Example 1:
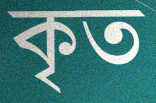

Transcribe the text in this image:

কৃত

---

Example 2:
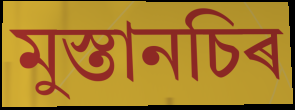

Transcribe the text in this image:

মুস্তানচিৰ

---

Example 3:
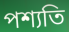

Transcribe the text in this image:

পশ্যতি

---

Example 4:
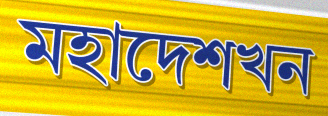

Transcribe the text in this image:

মহাদেশখন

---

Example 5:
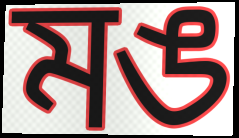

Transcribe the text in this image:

মঙ